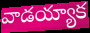
వాడయ్యాక